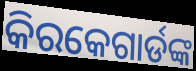
କିରକେଗାର୍ଡଙ୍କ